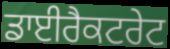
ਡਾਈਰੈਕਟਰੇਟ